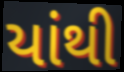
યાંથી